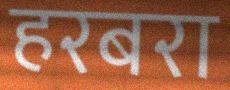
हरबरा